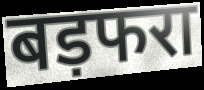
बड़फरा